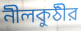
নীলকুঠীর